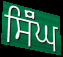
ਸਿੱੰਘ